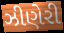
ઝીણેરી